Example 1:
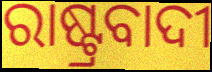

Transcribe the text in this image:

ରାଷ୍ଟ୍ରବାଦୀ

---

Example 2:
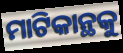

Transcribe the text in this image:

ମାଟିକାନ୍ଥକୁ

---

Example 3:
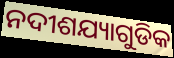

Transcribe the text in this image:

ନଦୀଶଯ୍ୟାଗୁଡିକ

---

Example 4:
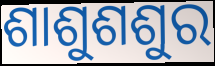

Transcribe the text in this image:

ଶାଶୁଶଶୁର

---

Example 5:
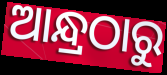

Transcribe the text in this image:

ଆନ୍ଧ୍ରଠାରୁ